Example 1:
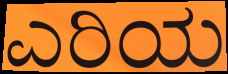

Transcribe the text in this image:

ಎರಿಯ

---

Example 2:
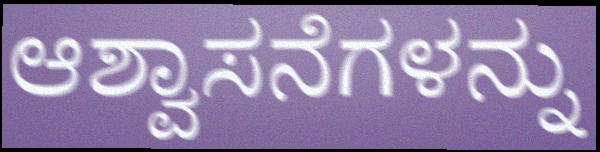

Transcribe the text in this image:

ಆಶ್ವಾಸನೆಗಳನ್ನು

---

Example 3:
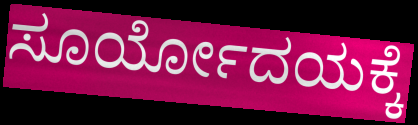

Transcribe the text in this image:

ಸೂರ್ಯೋದಯಕ್ಕೆ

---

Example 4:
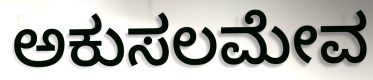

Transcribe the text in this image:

ಅಕುಸಲಮೇವ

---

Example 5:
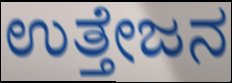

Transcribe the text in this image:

ಉತ್ತೇಜನ